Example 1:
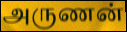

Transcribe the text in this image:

அருணன்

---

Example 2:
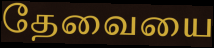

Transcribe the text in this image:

தேவையை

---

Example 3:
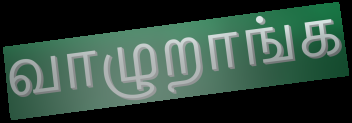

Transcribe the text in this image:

வாழுறாங்க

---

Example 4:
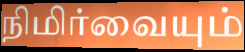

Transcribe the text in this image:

நிமிர்வையும்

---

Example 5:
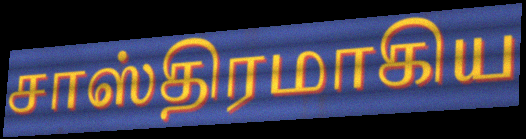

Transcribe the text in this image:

சாஸ்திரமாகிய